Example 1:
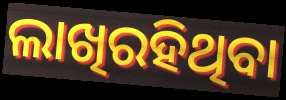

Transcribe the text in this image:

ଲାଖିରହିଥିବା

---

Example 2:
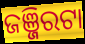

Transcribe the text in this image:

ଜଞ୍ଜିରଟା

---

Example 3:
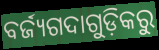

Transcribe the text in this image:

ବର୍ଜ୍ୟଗଦାଗୁଡ଼ିକରୁ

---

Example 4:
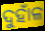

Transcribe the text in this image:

ଦୁହାଁଳ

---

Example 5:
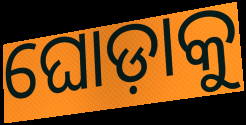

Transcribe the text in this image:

ଘୋଡ଼ାକୁ